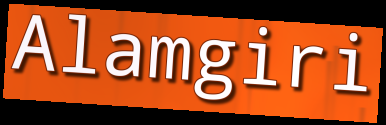
Alamgiri